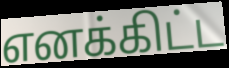
எனக்கிட்ட